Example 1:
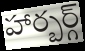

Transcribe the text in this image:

హార్బర్గ్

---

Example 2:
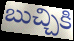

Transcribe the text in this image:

బుచ్చికి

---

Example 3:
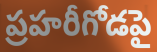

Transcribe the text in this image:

ప్రహరీగోడపై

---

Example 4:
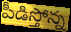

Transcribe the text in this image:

పీడిస్తోన్న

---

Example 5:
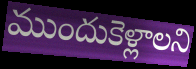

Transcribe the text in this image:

ముందుకెళ్లాలని